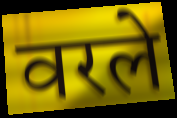
वरले